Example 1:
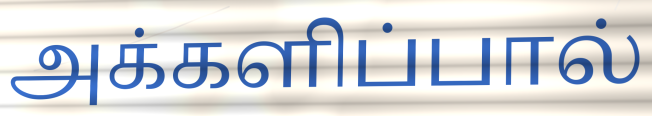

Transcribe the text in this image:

அக்களிப்பால்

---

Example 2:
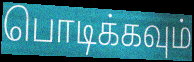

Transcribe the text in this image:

பொடிக்கவும்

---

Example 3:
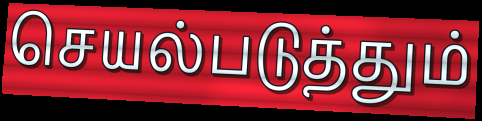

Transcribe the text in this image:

செயல்படுத்தும்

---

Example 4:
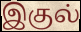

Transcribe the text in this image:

இகுல்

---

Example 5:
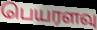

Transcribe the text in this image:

பெயரளவு